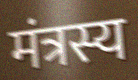
मंत्रस्य